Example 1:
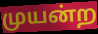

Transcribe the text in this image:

முயன்ற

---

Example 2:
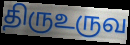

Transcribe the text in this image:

திருஉருவ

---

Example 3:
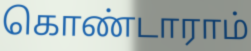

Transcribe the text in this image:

கொண்டாராம்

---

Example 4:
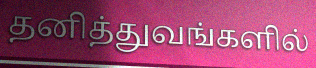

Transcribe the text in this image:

தனித்துவங்களில்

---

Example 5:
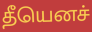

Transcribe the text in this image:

தீயெனச்